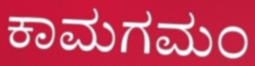
ಕಾಮಗಮಂ